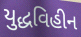
યુદ્ધવિહીન